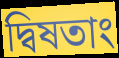
দ্বিষতাং